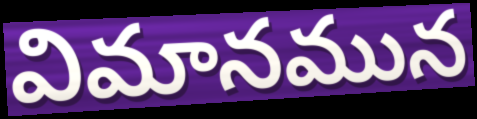
విమానమున